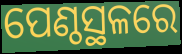
ପେଣ୍ଠସ୍ଥଳରେ